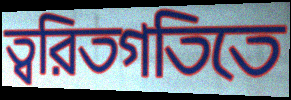
ত্বরিতগতিতে